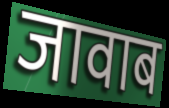
जावाब